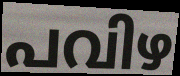
പവിഴ